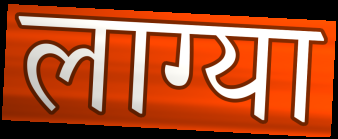
लाग्या